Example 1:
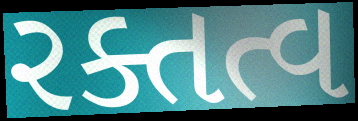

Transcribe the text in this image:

રક્તત્વ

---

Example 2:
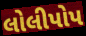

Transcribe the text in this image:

લોલીપોપ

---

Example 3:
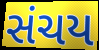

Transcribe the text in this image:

સંચય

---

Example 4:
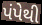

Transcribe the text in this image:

પંપેથી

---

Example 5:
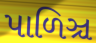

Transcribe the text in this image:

પાળિઞ્ચ